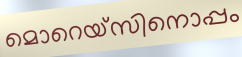
മൊറെയ്സിനൊപ്പം